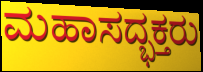
ಮಹಾಸದ್ಭಕ್ತರು